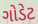
ગોડેટ